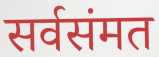
सर्वसंमत